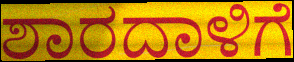
ಶಾರದಾಳಿಗೆ